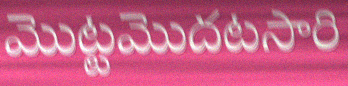
మొట్టమొదటసారి